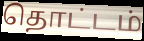
தொட்டம்